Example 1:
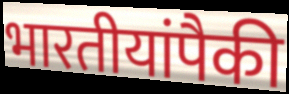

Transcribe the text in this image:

भारतीयांपैकी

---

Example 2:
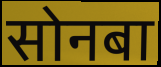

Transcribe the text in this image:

सोनबा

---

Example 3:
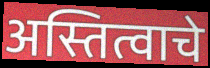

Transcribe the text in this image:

अस्तित्वाचे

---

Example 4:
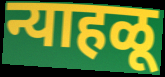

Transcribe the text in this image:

न्याहळू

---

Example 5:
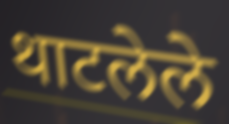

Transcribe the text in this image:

थाटलेले